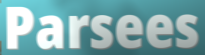
Parsees